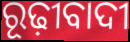
ରୂଢ଼ୀବାଦୀ